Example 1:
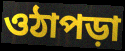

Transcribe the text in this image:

ওঠাপড়া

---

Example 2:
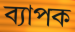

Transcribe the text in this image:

ব্যাপক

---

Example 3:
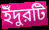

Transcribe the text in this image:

ইঁদুরটি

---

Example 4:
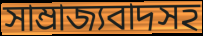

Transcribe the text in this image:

সাম্রাজ্যবাদসহ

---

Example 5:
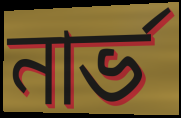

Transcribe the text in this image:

নার্ভ